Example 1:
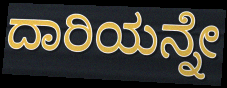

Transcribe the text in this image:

ದಾರಿಯನ್ನೇ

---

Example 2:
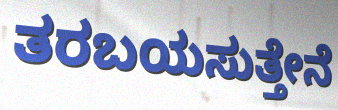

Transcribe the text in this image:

ತರಬಯಸುತ್ತೇನೆ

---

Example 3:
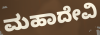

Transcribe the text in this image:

ಮಹಾದೇವಿ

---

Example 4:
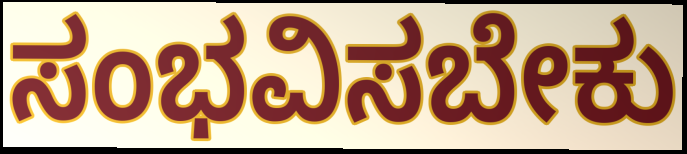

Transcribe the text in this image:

ಸಂಭವಿಸಬೇಕು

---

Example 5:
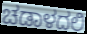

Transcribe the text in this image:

ಚಡಾಳದಲಿ